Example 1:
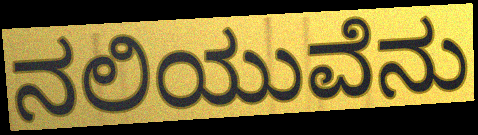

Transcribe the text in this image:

ನಲಿಯುವೆನು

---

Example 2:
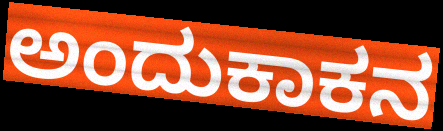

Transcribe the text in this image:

ಅಂದುಕಾಕನ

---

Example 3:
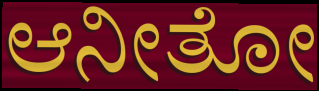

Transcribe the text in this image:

ಆನೀತೋ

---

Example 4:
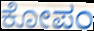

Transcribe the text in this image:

ಕೋಪಂ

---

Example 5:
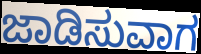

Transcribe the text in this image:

ಜಾಡಿಸುವಾಗ